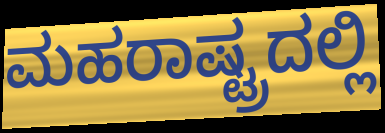
ಮಹರಾಷ್ಟ್ರದಲ್ಲಿ